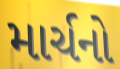
માર્ચનો